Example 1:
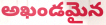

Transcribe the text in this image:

అఖండమైన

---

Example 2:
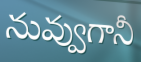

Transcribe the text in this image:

నువ్వుగానీ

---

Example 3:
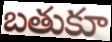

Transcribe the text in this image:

బతుకూ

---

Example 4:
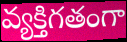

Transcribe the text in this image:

వ్యక్తిగతంగా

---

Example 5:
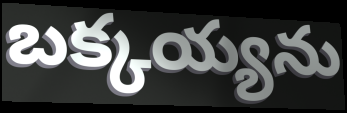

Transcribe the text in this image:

బక్కయ్యను